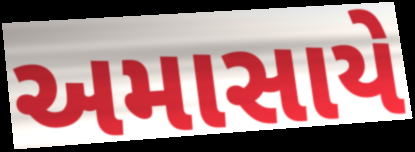
અમાસાયે